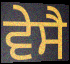
ਵੇਸੈ